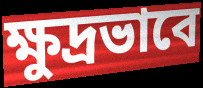
ক্ষুদ্রভাবে